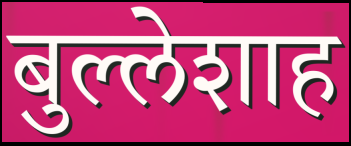
बुल्लेशाह